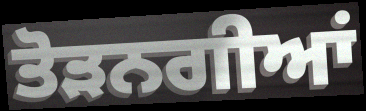
ਤੋੜਨਗੀਆਂ